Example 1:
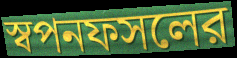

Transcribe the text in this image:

স্বপনফসলের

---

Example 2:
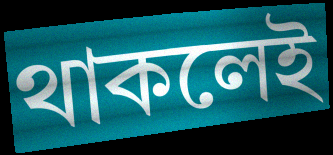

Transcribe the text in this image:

থাকলেই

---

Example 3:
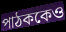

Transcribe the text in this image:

পাঠককেও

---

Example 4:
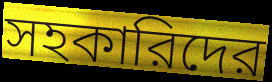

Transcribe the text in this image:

সহকারিদের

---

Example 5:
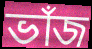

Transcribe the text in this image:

ভাঁজ